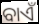
ବାଏଁ